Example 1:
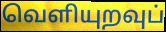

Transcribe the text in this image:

வெளியுறவுப்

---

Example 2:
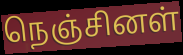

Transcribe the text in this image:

நெஞ்சினள்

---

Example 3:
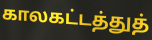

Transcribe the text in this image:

காலகட்டத்துத்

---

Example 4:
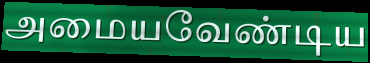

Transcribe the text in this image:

அமையவேண்டிய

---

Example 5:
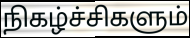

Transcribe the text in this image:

நிகழ்ச்சிகளும்